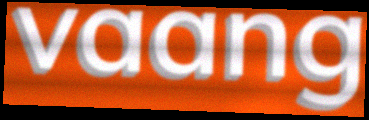
vaang